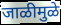
जाळीमुळे